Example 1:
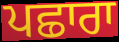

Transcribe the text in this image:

ਪਛਾਰਾ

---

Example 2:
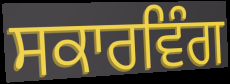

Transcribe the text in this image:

ਸਕਾਰਵਿੰਗ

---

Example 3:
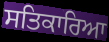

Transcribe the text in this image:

ਸਤਿਕਾਰਿਆ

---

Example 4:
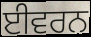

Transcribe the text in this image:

ਈਵਰਨ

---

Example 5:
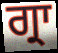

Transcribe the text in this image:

ਗ੍ਰਾ